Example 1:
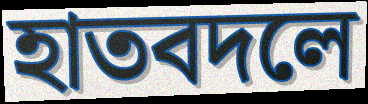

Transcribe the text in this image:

হাতবদলে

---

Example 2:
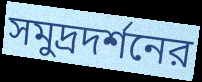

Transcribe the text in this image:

সমুদ্রদর্শনের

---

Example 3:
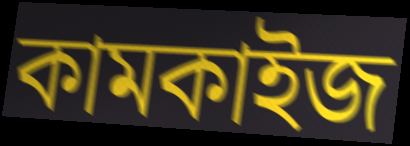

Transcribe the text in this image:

কামকাইজ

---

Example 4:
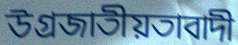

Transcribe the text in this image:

উগ্রজাতীয়তাবাদী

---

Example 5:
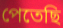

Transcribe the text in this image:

পেতেছি